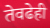
तेवढेही